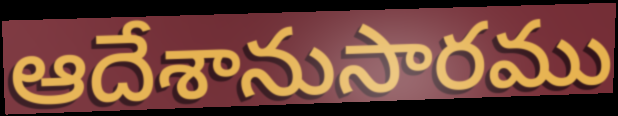
ఆదేశానుసారము